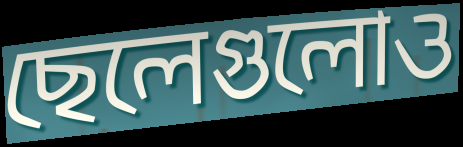
ছেলেগুলোও